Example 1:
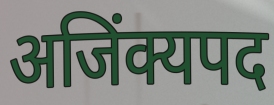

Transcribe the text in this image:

अजिंक्यपद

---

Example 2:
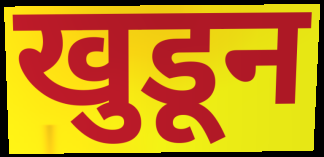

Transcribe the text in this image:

खुडून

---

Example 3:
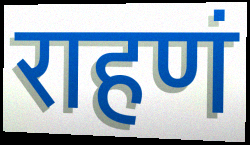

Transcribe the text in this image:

राहणं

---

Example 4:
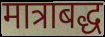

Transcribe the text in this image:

मात्राबद्ध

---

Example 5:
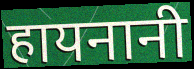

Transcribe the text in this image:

हायनानी